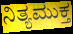
ನಿತ್ಯಮುಕ್ತ